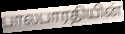
பாலபாரதியின்